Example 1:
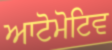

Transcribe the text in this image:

ਆਟੋਮੋਟਿਵ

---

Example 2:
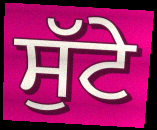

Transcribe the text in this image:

ਸੁੱਟੇ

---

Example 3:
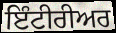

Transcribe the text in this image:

ਇੰਟੀਰੀਅਰ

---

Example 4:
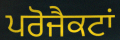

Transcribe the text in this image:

ਪਰੋਜੈਕਟਾਂ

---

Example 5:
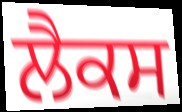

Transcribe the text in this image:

ਲੈਕਸ